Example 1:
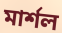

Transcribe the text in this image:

মার্শল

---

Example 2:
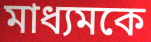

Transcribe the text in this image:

মাধ্যমকে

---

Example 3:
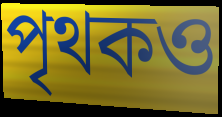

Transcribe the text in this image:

পৃথকও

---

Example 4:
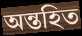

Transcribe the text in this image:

অন্তহিত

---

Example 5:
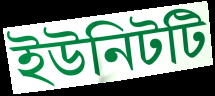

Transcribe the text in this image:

ইউনিটটি